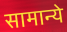
सामान्ये